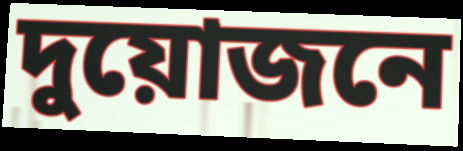
দুয়োজনে